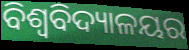
ବିଶ୍ୱବିଦ୍ୟାଳୟର